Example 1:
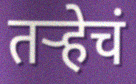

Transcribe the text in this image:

तर्‍हेचं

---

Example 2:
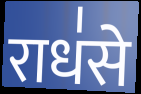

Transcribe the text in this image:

राध॑से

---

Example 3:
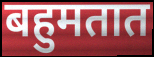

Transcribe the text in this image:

बहुमतात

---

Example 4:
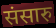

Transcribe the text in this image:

संसारु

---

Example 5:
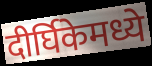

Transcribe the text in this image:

दीर्घिकेमध्ये